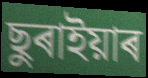
ছুৰাইয়াৰ